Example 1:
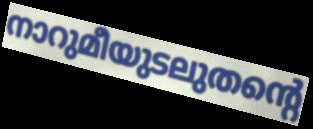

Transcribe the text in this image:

നാറുമീയുടലുതന്റെ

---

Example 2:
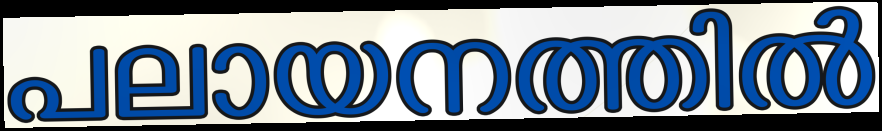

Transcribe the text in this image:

പലായനത്തിൽ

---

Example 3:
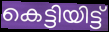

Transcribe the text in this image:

കെട്ടിയിട്ട്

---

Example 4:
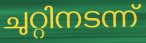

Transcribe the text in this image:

ചുറ്റിനടന്ന്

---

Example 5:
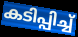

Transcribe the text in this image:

കടിപ്പിച്ച്